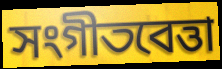
সংগীতবেত্তা